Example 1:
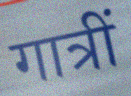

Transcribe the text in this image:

गात्रीं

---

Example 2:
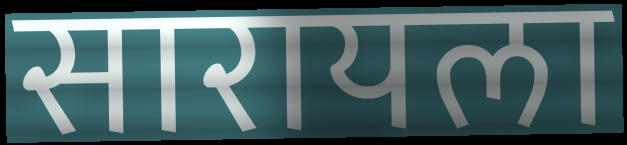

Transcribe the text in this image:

सारायला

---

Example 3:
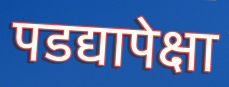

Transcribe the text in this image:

पडद्यापेक्षा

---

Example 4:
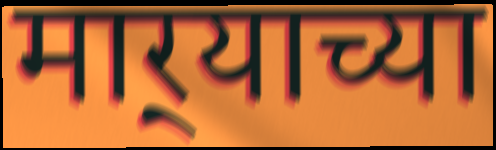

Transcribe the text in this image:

मार्याच्या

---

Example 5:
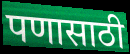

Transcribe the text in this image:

पणासाठी